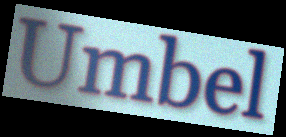
Umbel